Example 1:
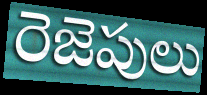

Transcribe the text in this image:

రెజెపులు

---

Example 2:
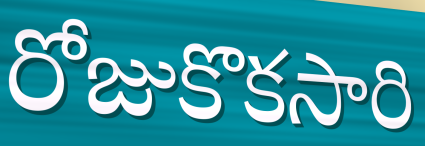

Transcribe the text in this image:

రోజుకొకసారి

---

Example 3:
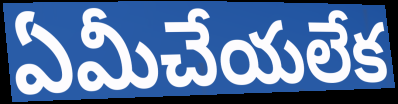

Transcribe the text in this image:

ఏమీచేయలేక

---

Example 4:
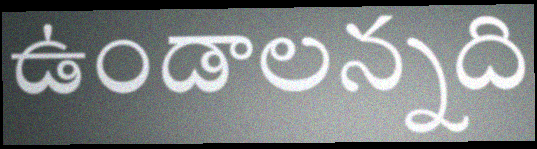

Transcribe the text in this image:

ఉండాలన్నది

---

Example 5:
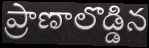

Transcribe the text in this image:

ప్రాణాలొడ్డిన